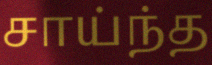
சாய்ந்த